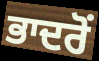
ਭਾਦਰੋਂ